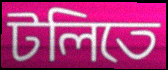
টলিতে